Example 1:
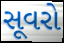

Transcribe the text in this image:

સૂવરો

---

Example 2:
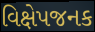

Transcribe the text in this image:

વિક્ષેપજનક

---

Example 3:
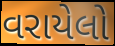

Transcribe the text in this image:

વરાયેલો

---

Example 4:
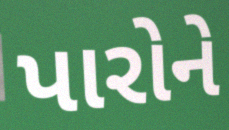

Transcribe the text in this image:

પારોને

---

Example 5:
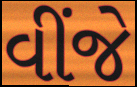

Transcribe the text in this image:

વીંજે